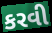
કરવી